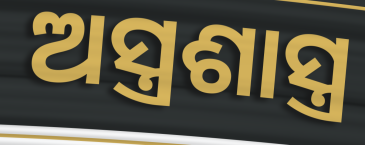
ଅସ୍ତ୍ରଶାସ୍ତ୍ର